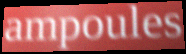
ampoules